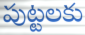
పుట్టలకు